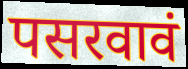
पसरवावं